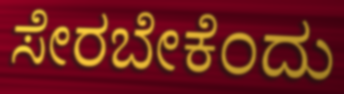
ಸೇರಬೇಕೆಂದು